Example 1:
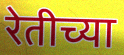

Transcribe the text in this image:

रेतीच्या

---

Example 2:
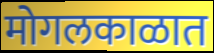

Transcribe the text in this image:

मोगलकाळात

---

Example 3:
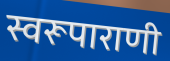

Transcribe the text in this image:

स्वरूपाराणी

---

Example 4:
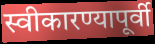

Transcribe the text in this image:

स्वीकारण्यापूर्वी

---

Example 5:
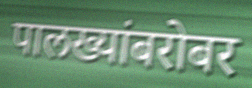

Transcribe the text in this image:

पालख्यांबरोबर